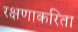
रक्षणाकरिता